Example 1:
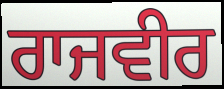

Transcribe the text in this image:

ਰਾਜਵੀਰ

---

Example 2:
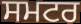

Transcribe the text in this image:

ਸਮਟਰ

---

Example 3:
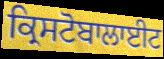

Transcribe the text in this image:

ਕ੍ਰਿਸਟੋਬਾਲਾਈਟ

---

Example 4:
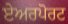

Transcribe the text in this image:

ਏਅਰਪੋਰਟ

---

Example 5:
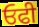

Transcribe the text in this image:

ਓਫੀ